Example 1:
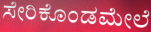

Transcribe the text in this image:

ಸೇರಿಕೊಂಡಮೇಲೆ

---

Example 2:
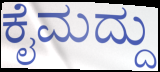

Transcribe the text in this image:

ಕೈಮದ್ದು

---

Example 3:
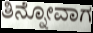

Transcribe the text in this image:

ತಿನ್ನೋವಾಗ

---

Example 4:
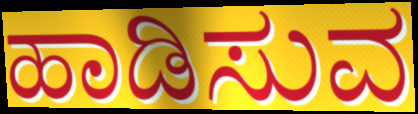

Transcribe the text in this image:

ಹಾಡಿಸುವ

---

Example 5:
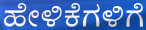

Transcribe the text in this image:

ಹೇಳಿಕೆಗಳಿಗೆ